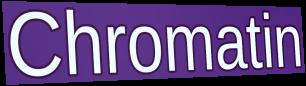
Chromatin